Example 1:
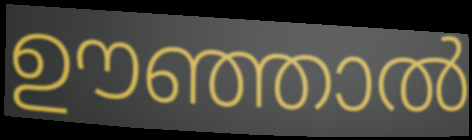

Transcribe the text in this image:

ഊഞ്ഞാൽ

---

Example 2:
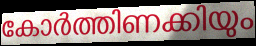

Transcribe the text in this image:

കോർത്തിണക്കിയും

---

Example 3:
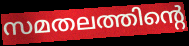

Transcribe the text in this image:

സമതലത്തിന്റെ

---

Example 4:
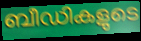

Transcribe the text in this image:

ബീഡികളുടെ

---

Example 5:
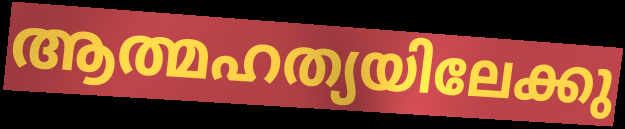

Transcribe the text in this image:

ആത്മഹത്യയിലേക്കു